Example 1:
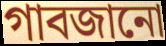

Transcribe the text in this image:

গাবজানো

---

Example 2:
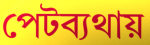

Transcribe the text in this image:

পেটব্যথায়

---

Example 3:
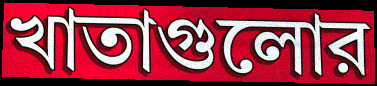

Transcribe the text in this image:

খাতাগুলোর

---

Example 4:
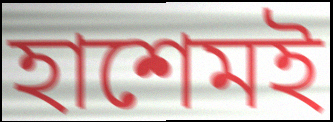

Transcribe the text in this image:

হাশেমই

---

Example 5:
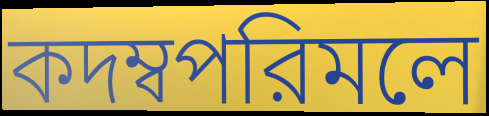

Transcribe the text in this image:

কদম্বপরিমলে